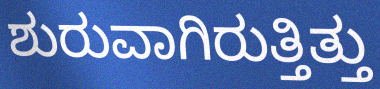
ಶುರುವಾಗಿರುತ್ತಿತ್ತು